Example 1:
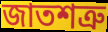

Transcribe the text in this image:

জাতশত্রু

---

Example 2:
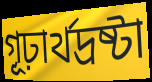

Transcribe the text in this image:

গূঢ়ার্থদ্রষ্টা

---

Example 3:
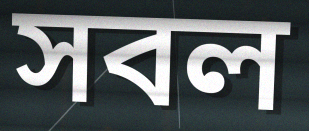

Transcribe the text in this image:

সবল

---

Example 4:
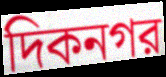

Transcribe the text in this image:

দিকনগর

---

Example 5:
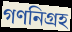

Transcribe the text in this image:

গণনিগ্রহ